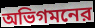
অভিগমনের